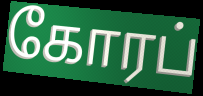
கோரப்